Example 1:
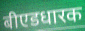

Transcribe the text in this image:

बीएडधारक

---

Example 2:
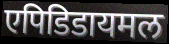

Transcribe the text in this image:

एपिडिडायमल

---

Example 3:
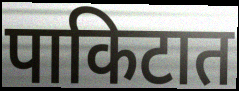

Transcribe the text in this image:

पाकिटात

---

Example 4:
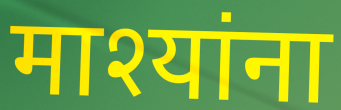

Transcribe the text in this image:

माश्यांना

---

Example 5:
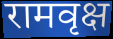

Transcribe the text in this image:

रामवृक्ष